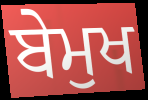
ਬੇਮੁਖ